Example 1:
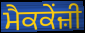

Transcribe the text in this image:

ਮੈਕਕੇਂਜ਼ੀ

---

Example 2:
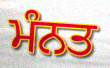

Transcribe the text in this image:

ਮੰਨਤ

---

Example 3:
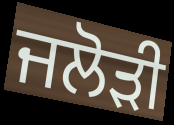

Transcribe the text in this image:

ਜਲੋੜੀ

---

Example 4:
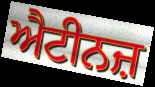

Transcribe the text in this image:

ਐਟੀਨਜ਼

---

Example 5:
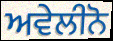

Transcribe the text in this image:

ਅਵੇਲੀਨੋ